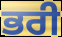
ਭਰੀ